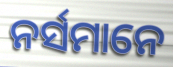
ନର୍ସମାନେ